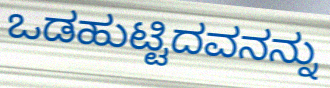
ಒಡಹುಟ್ಟಿದವನನ್ನು